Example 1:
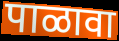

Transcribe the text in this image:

पाळावा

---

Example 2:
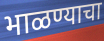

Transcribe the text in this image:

भाळण्याचा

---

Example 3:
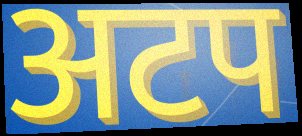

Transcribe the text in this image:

अटप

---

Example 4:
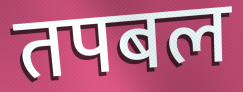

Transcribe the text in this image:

तपबल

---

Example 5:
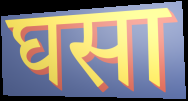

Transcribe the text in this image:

घसा